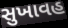
સુખાવહ